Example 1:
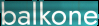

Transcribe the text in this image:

balkone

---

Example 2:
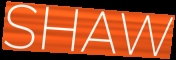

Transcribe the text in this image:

SHAW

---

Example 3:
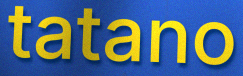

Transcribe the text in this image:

tatano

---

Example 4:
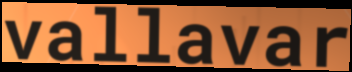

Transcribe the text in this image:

vallavar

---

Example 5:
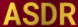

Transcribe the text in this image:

ASDR